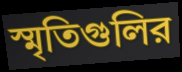
স্মৃতিগুলির